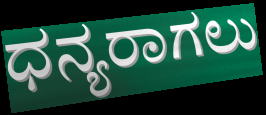
ಧನ್ಯರಾಗಲು